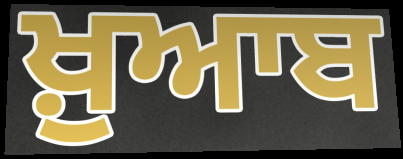
ਖ਼ੁਆਬ